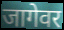
जागेवर